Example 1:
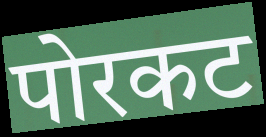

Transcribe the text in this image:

पोरकट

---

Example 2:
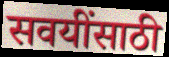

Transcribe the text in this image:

सवयींसाठी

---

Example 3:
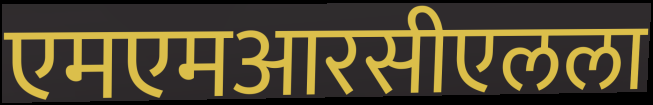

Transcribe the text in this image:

एमएमआरसीएलला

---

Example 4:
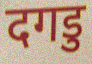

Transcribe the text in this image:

दगडु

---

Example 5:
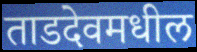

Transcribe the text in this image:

ताडदेवमधील